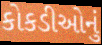
કોકડીઓનું